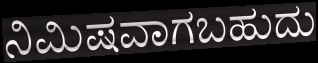
ನಿಮಿಷವಾಗಬಹುದು